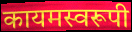
कायमस्वरूपी